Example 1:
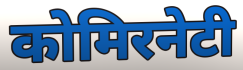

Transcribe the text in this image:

कोमिरनेटी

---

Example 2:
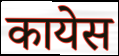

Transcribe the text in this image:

कायेस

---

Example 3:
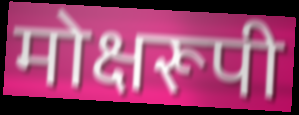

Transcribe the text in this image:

मोक्षरूपी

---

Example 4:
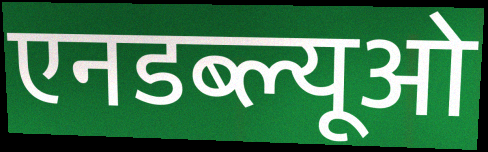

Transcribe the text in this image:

एनडब्ल्यूओ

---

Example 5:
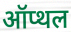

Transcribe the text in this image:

ऑप्थल